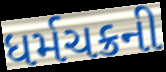
ધર્મચક્રની